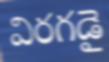
విరగడై